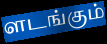
ளடங்கும்